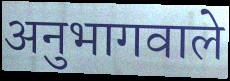
अनुभागवाले